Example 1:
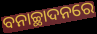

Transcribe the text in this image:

ବନାଚ୍ଛାଦନରେ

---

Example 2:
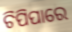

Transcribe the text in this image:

ଚିପିପାରେ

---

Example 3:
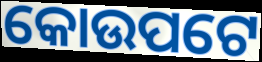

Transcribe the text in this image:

କୋଉପଟେ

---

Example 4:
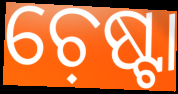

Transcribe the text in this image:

ଚ଼େଷ୍ଟା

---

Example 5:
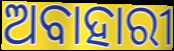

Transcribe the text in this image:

ଅବାହାରୀ